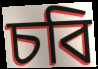
চবি